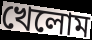
খেলোম